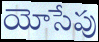
యోసేపు